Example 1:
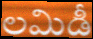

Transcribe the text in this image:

లమిడీ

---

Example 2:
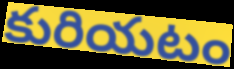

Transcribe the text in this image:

కురియటం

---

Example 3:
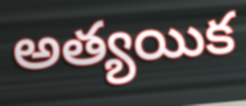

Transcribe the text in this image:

అత్యయిక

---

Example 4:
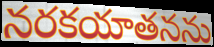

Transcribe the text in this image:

నరకయాతనను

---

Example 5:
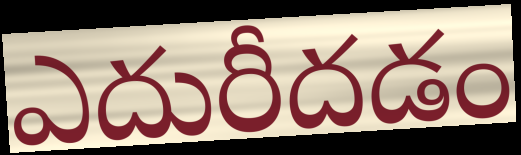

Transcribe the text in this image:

ఎదురీదడం